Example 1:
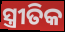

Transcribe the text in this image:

ସ୍ତ୍ରୀତିକ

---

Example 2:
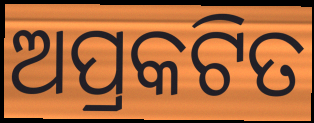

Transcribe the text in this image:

ଅପ୍ରକଟିତ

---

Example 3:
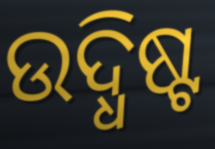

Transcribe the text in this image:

ଉଦ୍ଧିଷ୍ଟ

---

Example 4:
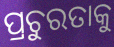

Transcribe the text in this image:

ପ୍ରଚୁରତାକୁ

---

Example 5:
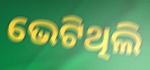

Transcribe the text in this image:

ଭେଟିଥିଲି